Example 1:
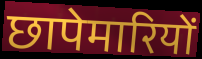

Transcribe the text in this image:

छापेमारियों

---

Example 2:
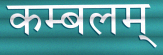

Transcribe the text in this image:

कम्बलम्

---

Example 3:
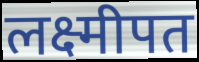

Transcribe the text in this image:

लक्ष्मीपत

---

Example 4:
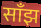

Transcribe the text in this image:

साँझ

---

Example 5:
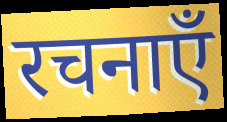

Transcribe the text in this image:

रचनाएँ